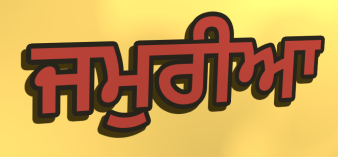
ਜਮੁਰੀਆ